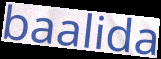
baalida